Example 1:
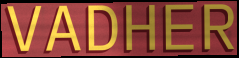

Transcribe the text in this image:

VADHER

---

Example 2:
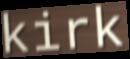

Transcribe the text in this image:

kirk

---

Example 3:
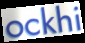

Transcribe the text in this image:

ockhi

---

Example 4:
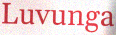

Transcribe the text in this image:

Luvunga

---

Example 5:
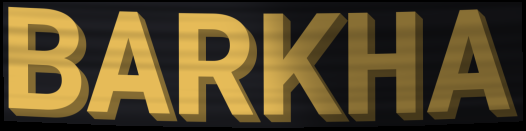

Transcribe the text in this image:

BARKHA